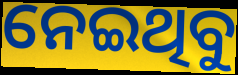
ନେଇଥିବୁ